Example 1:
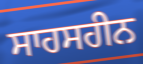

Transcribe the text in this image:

ਸਾਹਸਹੀਨ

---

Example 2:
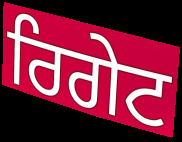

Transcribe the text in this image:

ਰਿਗੇਟ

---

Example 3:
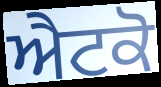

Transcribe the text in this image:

ਐਟਕੋ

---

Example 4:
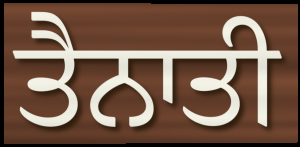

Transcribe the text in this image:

ਤੈਨਾਤੀ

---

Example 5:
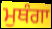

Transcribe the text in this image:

ਮੁਥੰਗਾ